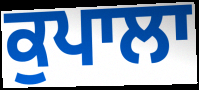
ਕੁਪਾਲਾ